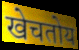
खेचतोय